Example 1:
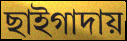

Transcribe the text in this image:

ছাইগাদায়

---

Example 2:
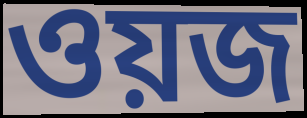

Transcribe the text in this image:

ওয়জ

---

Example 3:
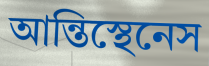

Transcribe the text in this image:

আন্তিস্থেনেস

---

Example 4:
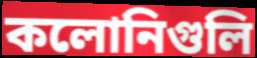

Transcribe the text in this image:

কলোনিগুলি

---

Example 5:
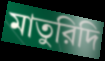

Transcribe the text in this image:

মাতুরিদি